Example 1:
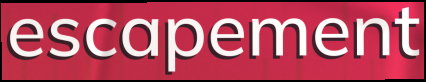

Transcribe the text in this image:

escapement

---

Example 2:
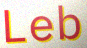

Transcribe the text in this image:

Leb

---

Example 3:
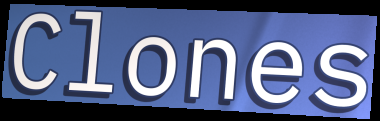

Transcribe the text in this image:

Clones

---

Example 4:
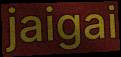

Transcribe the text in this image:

jaigai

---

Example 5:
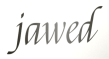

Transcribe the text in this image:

jawed